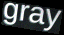
gray